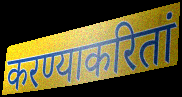
करण्याकरितां